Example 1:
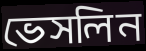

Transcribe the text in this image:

ভেসলিন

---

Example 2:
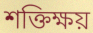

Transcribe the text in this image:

শক্তিক্ষয়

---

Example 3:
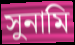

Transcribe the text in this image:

সুনামি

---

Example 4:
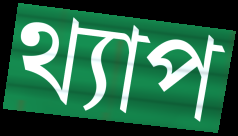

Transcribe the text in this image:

থ্যাপ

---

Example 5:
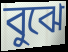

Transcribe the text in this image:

বুঝে